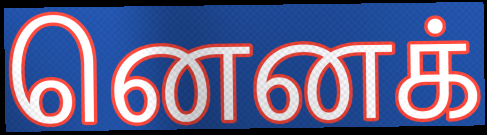
னெனக்